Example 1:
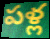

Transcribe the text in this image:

పళ్ల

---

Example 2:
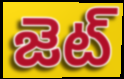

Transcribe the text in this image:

జెట్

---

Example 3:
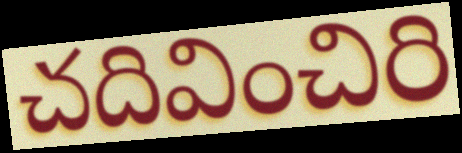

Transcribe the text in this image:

చదివించిరి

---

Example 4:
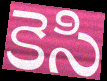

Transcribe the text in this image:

కెసి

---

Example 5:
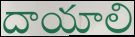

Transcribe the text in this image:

దాయాలి